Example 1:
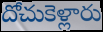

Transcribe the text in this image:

దోచుకెళ్లారు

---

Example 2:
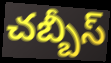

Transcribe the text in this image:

చబ్బీస్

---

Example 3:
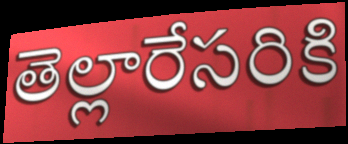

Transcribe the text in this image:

తెల్లారేసరికి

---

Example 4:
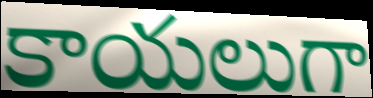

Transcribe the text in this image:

కాయలుగా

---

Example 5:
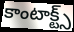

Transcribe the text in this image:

కాంటాక్ట్స్